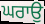
ਘਰਾਉ